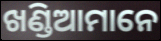
ଖଣ୍ଡିଆମାନେ